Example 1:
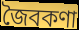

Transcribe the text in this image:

জৈবকণা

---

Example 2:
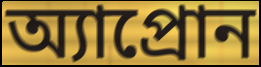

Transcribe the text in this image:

অ্যাপ্রোন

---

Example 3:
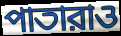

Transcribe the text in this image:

পাতারাও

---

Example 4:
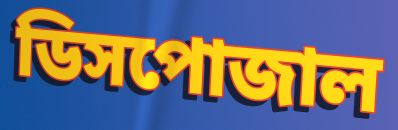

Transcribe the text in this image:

ডিসপোজাল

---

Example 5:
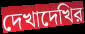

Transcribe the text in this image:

দেখাদেখির